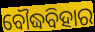
ବୌଦ୍ଧବିହାର